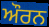
ਔਰਨ